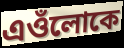
এওঁলোকে